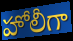
హోలీగా